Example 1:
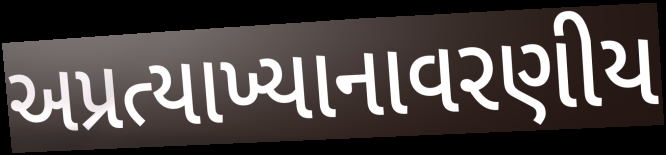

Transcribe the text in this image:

અપ્રત્યાખ્યાનાવરણીય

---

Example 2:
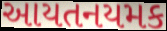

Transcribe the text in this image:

આયતનયમક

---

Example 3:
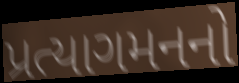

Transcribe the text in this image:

પ્રત્યાગમનનો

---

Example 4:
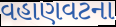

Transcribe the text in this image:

વહાણવટના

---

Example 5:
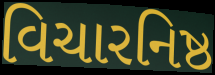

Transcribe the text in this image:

વિચારનિષ્ઠ